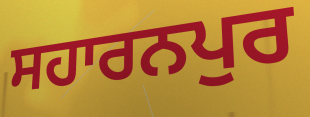
ਸਹਾਰਨਪੁਰ